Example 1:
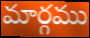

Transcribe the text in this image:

మార్గము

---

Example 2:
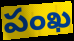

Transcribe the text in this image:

పంఖ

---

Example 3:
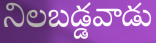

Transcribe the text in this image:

నిలబడ్డవాడు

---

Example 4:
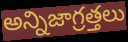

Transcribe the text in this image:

అన్నిజాగ్రత్తలు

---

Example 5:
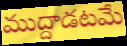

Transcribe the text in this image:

ముద్దాడటమే